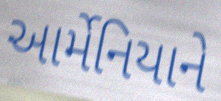
આર્મેનિયાને